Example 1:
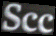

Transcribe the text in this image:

Scc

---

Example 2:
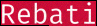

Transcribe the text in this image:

Rebati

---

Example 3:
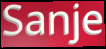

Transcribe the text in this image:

Sanje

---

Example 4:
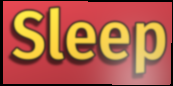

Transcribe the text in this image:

Sleep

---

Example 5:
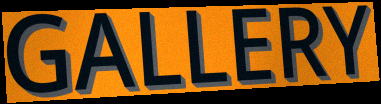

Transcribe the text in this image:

GALLERY